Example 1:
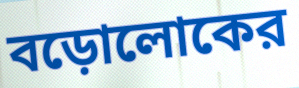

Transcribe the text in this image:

বড়োলোকের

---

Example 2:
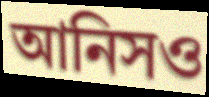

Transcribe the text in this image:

আনিসও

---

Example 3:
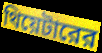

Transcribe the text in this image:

থিয়েটারের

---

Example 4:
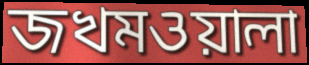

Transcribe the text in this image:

জখমওয়ালা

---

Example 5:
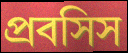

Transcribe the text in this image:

প্রবসিস